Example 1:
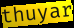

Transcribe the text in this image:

thuyar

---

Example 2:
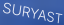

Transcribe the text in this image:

SURYAST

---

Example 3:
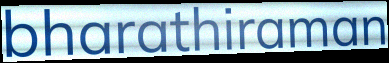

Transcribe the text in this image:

bharathiraman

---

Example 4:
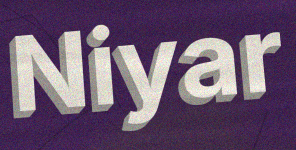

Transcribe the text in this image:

Niyar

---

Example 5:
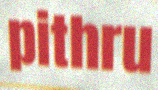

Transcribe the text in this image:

pithru